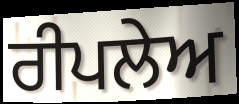
ਰੀਪਲੇਅ